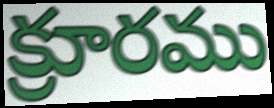
క్రూరము